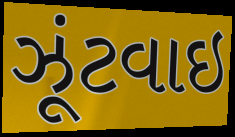
ઝૂંટવાઇ